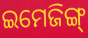
ଇମେଜିଙ୍ଗ୍